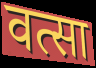
वत्सा